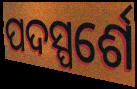
ପଦସ୍ପର୍ଶେ